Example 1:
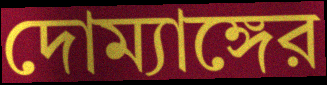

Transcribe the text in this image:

দোম্যাঙ্গের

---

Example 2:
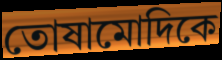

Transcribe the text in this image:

তোষামোদিকে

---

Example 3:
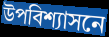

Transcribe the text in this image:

উপবিশ্যাসনে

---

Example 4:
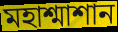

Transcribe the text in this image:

মহাশ্মাশান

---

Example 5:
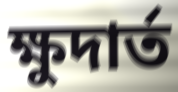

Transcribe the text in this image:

ক্ষুদার্ত